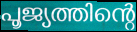
പൂജ്യത്തിന്റെ